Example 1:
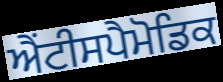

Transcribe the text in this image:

ਐਂਟੀਸਪੈਮੋਡਿਕ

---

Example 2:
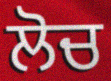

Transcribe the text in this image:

ਲੋਚ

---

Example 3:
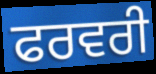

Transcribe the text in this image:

ਫਰਵਰੀ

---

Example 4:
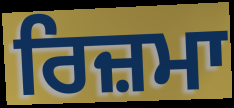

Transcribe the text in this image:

ਰਿਜ਼ਮਾ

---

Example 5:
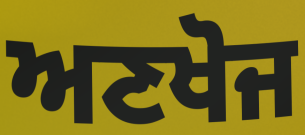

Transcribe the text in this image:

ਅਣਖੋਜ